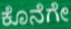
ಕೊನೆಗೇ